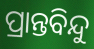
ପ୍ରାନ୍ତବିନ୍ଦୁ